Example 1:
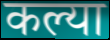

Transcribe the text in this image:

कल्या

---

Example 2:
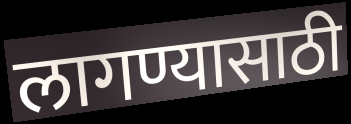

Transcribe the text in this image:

लागण्यासाठी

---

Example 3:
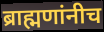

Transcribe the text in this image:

ब्राह्मणांनीच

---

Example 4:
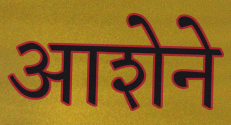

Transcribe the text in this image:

आशेने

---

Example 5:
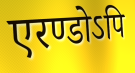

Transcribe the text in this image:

एरण्डोऽपि